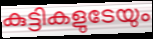
കുട്ടികളുടേയും